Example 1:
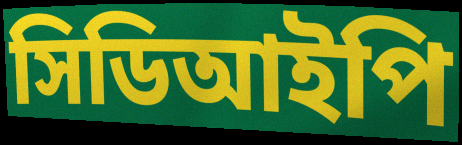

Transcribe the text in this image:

সিডিআইপি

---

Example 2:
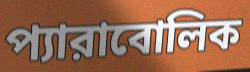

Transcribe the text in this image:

প্যারাবোলিক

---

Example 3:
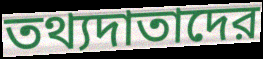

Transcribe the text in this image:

তথ্যদাতাদের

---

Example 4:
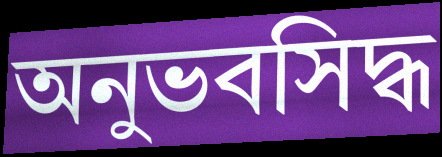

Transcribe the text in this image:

অনুভবসিদ্ধ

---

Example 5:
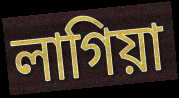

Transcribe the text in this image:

লাগিয়া